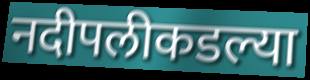
नदीपलीकडल्या